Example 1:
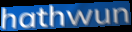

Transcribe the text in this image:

hathwun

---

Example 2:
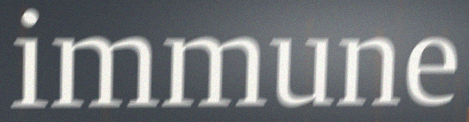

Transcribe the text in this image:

immune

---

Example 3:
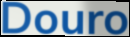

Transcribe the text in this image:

Douro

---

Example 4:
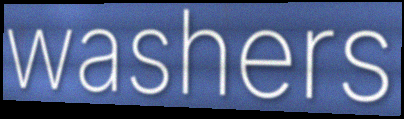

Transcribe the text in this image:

washers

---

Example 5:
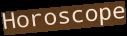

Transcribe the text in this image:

Horoscope